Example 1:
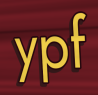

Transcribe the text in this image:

ypf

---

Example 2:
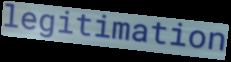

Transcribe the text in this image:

legitimation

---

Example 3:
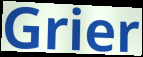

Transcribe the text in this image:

Grier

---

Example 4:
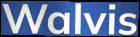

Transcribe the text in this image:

Walvis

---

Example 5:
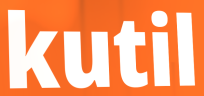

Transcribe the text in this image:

kutil